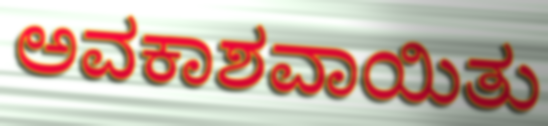
ಅವಕಾಶವಾಯಿತು